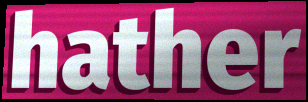
hather